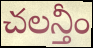
చలన్తీం